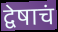
द्वेषाचं